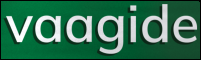
vaagide